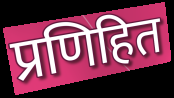
प्रणिहित